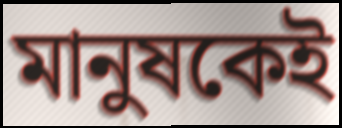
মানুষকেই